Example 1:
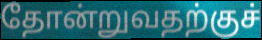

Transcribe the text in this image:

தோன்றுவதற்குச்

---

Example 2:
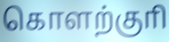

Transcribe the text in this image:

கொளற்குரி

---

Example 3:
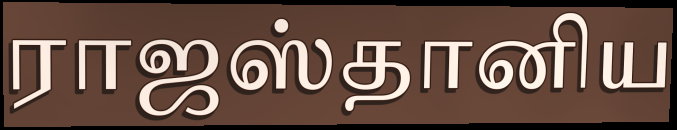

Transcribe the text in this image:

ராஜஸ்தானிய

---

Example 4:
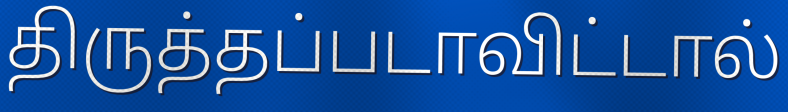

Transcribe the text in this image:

திருத்தப்படாவிட்டால்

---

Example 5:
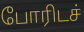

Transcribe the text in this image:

போரிடச்